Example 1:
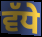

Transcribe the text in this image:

ਵੱਧੇ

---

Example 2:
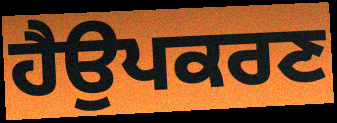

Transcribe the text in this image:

ਹੈਉਪਕਰਣ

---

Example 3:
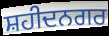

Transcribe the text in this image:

ਸ਼ਹੀਦਨਗਰ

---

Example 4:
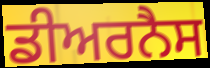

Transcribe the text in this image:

ਡੀਅਰਨੈਸ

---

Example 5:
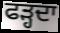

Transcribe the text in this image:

ਫੜ੍ਹਦਾ